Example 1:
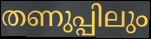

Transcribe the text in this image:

തണുപ്പിലും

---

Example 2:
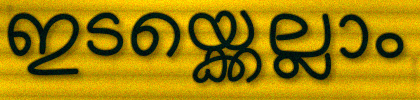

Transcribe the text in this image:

ഇടയ്ക്കെല്ലാം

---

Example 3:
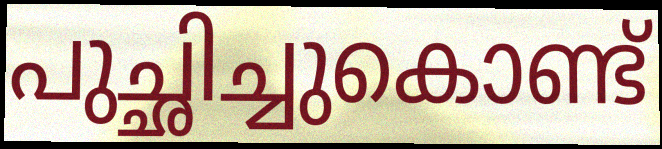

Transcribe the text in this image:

പുച്ഛിച്ചുകൊണ്ട്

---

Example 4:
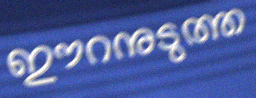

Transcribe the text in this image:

ഈറനുടുത്ത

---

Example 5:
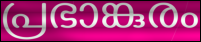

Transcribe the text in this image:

പ്രഭാങ്കുരം